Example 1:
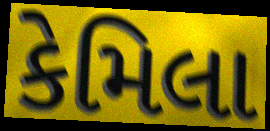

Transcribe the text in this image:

કેમિલા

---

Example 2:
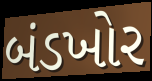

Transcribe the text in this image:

બંડખોર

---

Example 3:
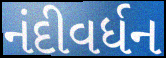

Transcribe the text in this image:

નંદીવર્ધન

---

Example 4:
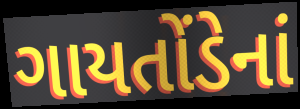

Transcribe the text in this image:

ગાયતોંડેનાં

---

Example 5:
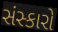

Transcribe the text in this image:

સંસ્કારો